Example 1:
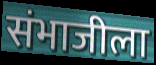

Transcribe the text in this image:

संभाजीला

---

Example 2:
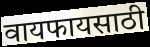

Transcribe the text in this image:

वायफायसाठी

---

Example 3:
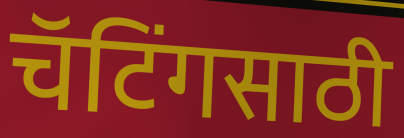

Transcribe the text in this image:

चॅटिंगसाठी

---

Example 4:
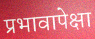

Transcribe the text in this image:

प्रभावापेक्षा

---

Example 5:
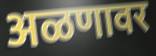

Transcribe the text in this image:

अळणावर